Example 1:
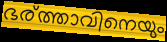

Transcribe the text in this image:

ഭര്ത്താവിനെയും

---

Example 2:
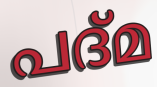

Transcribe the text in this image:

പദ്മ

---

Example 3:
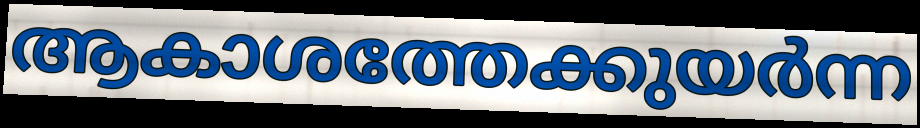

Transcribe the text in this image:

ആകാശത്തേക്കുയർന്ന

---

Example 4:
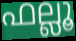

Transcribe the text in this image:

ഫല്ലൂ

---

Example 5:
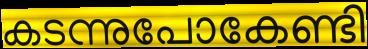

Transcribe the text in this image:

കടന്നുപോകേണ്ടി